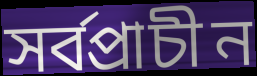
সর্বপ্রাচীন